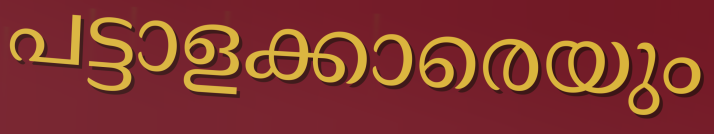
പട്ടാളക്കാരെയും